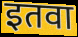
इतवा